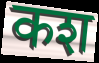
कश